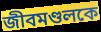
জীবমণ্ডলকে